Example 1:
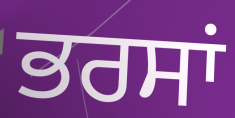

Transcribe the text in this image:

ਭਰਸਾਂ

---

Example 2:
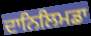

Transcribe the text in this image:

ਦਾਨਿਲਿਮਡਾ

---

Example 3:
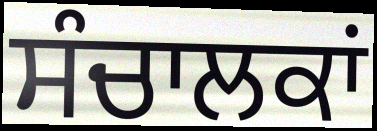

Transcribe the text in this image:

ਸੰਚਾਲਕਾਂ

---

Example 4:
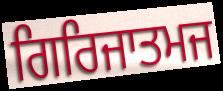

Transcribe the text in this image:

ਗਿਰਿਜਾਤਮਜ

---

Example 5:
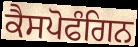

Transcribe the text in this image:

ਕੈਸਪੋਫੰਗਿਨ